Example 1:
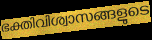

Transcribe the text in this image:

ഭക്തിവിശ്വാസങ്ങളുടെ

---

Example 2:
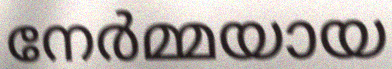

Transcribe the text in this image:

നേർമ്മയായ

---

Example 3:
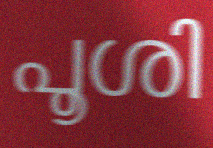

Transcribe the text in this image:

പൂശി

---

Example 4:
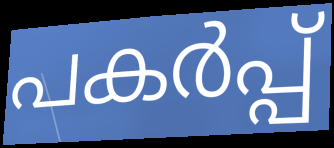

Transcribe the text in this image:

പകർപ്പ്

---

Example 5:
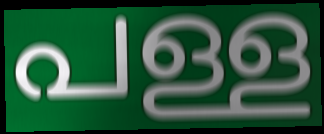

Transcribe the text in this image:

പള്ള